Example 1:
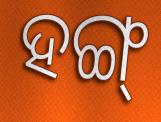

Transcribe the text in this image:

ହଙ୍ଗ୍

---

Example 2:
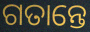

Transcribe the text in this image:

ଗତାନ୍ତେ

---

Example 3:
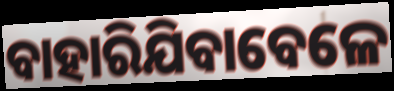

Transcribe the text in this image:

ବାହାରିଯିବାବେଳେ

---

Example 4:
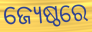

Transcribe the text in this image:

ଜ୍ୟେଷ୍ଠରେ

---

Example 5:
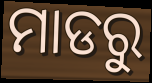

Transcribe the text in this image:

ମାଡରୁ